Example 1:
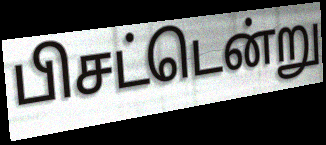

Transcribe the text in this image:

பிசட்டென்று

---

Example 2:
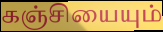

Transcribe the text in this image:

கஞ்சியையும்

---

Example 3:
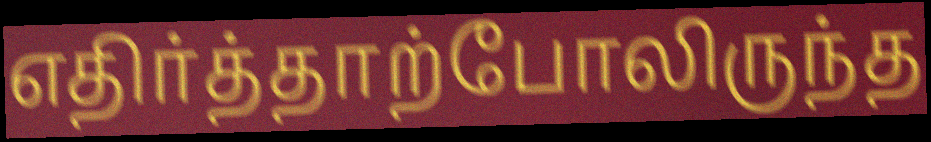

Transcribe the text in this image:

எதிர்த்தாற்போலிருந்த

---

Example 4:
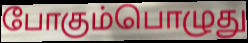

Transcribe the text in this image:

போகும்பொழுது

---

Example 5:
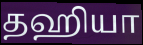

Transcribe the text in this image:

தஹியா